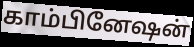
காம்பினேஷன்